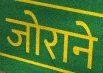
जोराने